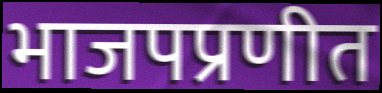
भाजपप्रणीत